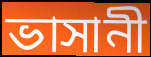
ভাসানী